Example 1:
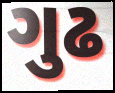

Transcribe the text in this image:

ગુઢ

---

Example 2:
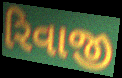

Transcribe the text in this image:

રિવાજી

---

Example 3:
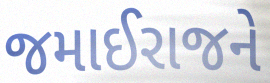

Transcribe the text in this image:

જમાઈરાજને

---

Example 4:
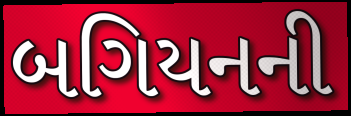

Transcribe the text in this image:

બગિયનની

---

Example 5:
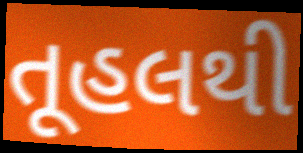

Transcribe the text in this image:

તૂહલથી